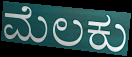
ಮೆಲಕು